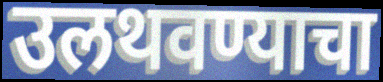
उलथवण्याचा